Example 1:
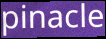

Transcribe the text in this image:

pinacle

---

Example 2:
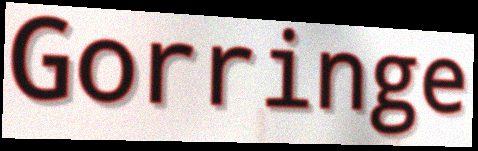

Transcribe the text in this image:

Gorringe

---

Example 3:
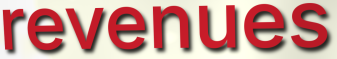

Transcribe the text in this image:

revenues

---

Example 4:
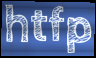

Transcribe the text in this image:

htfp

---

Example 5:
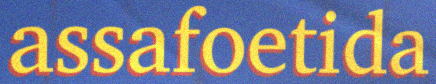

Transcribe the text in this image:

assafoetida